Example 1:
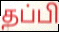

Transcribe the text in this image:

தப்பி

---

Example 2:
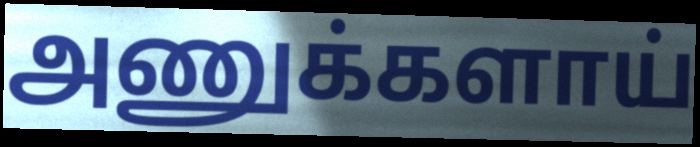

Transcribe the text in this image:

அணுக்களாய்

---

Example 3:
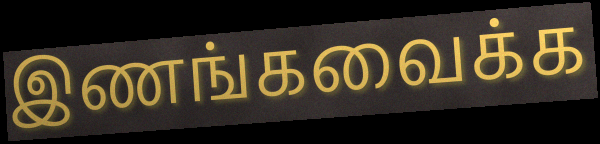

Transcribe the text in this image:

இணங்கவைக்க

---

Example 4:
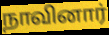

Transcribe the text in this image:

நாவினார்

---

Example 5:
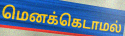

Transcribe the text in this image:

மெனக்கெடாமல்